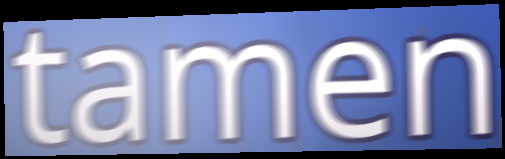
tamen